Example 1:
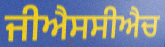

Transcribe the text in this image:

ਜੀਐਸਸੀਐਚ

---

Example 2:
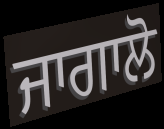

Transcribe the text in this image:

ਜਾਗਾਲੋ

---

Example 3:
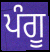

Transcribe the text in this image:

ਪੰਗੂ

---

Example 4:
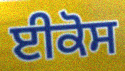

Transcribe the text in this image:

ਈਕੋਸ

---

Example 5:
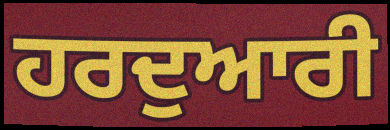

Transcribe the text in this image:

ਹਰਦੁਆਰੀ